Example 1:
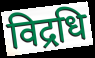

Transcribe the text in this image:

विद्रधि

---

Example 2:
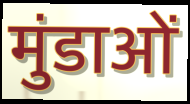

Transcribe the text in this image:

मुंडाओं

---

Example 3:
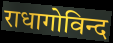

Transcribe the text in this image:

राधागोविन्द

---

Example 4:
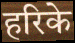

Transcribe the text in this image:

हरिके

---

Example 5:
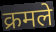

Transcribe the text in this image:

क्रमले